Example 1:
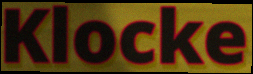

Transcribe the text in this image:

Klocke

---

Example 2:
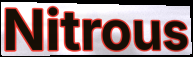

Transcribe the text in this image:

Nitrous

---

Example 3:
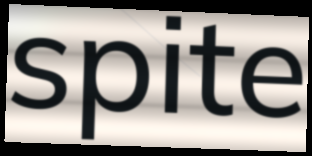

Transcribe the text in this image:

spite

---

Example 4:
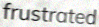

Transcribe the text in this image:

frustrated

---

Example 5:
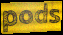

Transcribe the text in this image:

pods